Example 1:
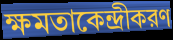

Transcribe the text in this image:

ক্ষমতাকেন্দ্রীকরণ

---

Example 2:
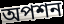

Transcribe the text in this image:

অপশন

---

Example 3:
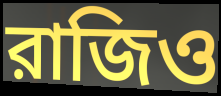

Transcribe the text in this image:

রাজিও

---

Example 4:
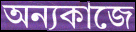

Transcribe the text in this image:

অন্যকাজে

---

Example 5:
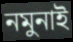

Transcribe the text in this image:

নমুনাই